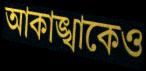
আকাঙ্খাকেও